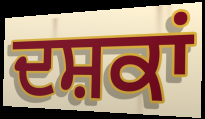
ਦਸ਼ਕਾਂ